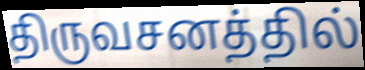
திருவசனத்தில்